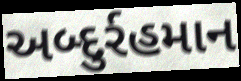
અબ્દુર્રહમાન